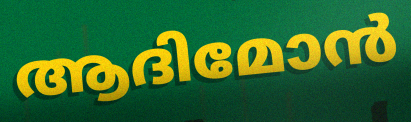
ആദിമോൻ